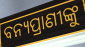
ବନ୍ୟପ୍ରାଣୀଙ୍କୁ